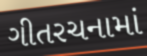
ગીતરચનામાં